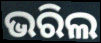
ଭରିଲ